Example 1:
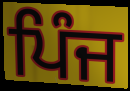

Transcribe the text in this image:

ਪਿੰਜ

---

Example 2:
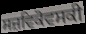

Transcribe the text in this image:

ਸਜ਼ਵਿਕੋਵਸਕੀ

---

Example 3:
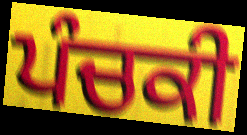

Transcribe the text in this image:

ਪੰਚਕੀ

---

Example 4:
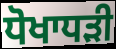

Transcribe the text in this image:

ਧੋਖਾਧਡ਼ੀ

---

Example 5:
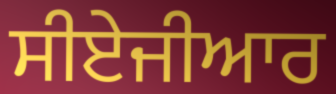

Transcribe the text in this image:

ਸੀਏਜੀਆਰ